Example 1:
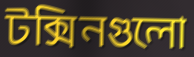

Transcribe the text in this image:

টক্সিনগুলো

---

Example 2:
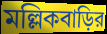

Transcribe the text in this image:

মল্লিকবাড়ির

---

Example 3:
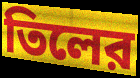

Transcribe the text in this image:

তিলের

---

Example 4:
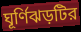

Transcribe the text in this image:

ঘূর্ণিঝড়টির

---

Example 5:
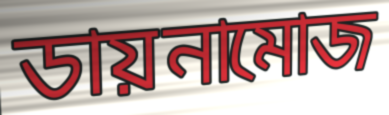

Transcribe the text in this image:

ডায়নামোজ